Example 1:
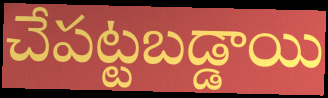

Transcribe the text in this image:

చేపట్టబడ్డాయి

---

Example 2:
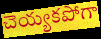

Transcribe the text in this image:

చెయ్యకపోగా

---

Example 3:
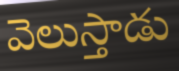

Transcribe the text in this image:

వెలుస్తాడు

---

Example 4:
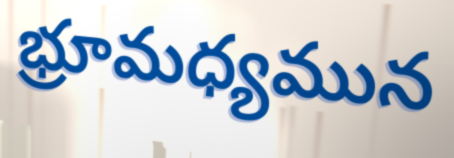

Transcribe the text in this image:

భ్రూమధ్యమున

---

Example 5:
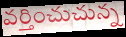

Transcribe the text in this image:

వర్తించుచున్న